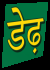
डेढ़